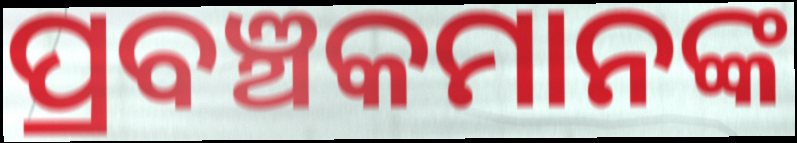
ପ୍ରବଞ୍ଚକମାନଙ୍କ